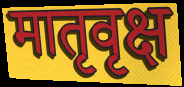
मातृवृक्ष